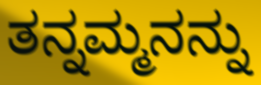
ತನ್ನಮ್ಮನನ್ನು